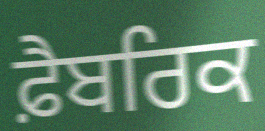
ਫ਼ੈਬਰਿਕ